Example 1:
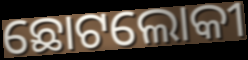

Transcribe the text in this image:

ଛୋଟଲୋକୀ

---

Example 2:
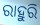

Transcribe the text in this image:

ରାହୁରି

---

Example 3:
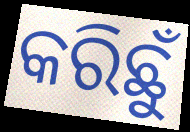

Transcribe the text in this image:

କରିଛୁଁ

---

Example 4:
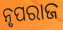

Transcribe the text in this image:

ନୃପରାଜ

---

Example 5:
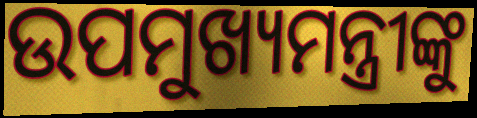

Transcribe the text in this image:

ଉପମୁଖ୍ୟମନ୍ତ୍ରୀଙ୍କୁ